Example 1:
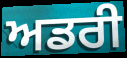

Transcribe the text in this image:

ਅਡਰੀ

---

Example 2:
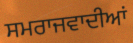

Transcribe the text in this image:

ਸਮਰਾਜਵਾਦੀਆਂ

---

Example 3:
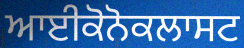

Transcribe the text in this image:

ਆਈਕੋਨੋਕਲਾਸਟ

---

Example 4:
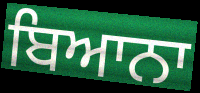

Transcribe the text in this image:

ਬਿਆਨਾ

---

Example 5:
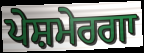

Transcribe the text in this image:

ਪੇਸ਼ਮੇਰਗਾ